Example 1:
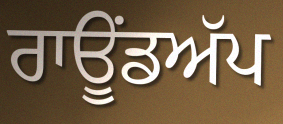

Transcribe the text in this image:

ਰਾਊਂਡਅੱਪ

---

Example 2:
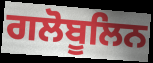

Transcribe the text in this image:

ਗਲੋਬੂਲਿਨ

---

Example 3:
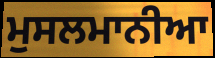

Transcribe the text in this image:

ਮੁਸਲਮਾਨੀਆ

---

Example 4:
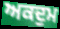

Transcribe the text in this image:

ਅਕਦੁਮ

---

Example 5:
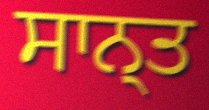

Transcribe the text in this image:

ਸਾਨ੍ਤ